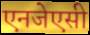
एनजेएसी